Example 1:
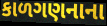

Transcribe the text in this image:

કાળગણનાના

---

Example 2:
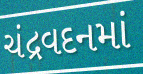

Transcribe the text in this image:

ચંદ્રવદનમાં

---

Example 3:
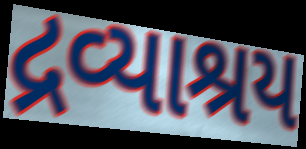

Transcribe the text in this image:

દ્રવ્યાશ્રય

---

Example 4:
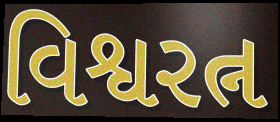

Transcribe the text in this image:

વિશ્વરત્ન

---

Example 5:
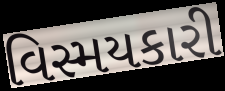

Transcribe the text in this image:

વિસ્મયકારી